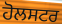
ਹੋਲਸਟਰ